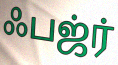
ஃபஜ்ர்